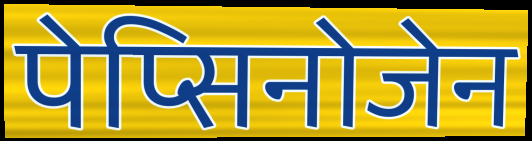
पेप्सिनोजेन